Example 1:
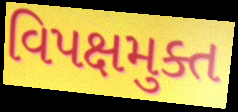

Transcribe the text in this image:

વિપક્ષમુક્ત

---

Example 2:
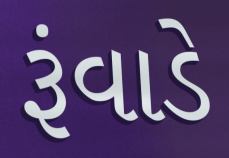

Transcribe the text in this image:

રૂંવાડે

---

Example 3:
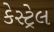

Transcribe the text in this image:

કેસ્ટ્રેલ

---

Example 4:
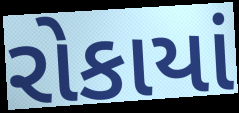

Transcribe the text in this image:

રોકાયાં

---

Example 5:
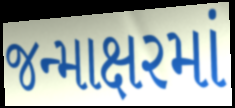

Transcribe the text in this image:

જન્માક્ષરમાં